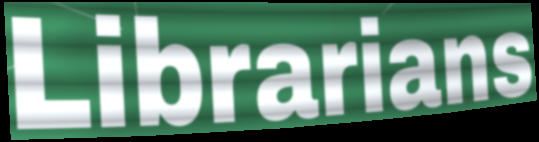
Librarians